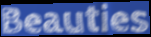
Beauties